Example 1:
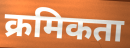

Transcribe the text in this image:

क्रमिकता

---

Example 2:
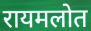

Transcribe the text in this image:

रायमलोत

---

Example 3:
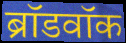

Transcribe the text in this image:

ब्रॉडवॉक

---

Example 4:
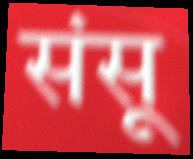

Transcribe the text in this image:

संसू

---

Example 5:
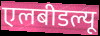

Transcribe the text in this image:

एलबीडल्यू